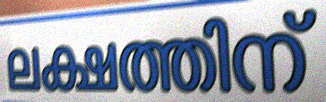
ലക്ഷത്തിന്